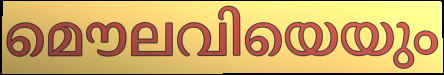
മൌലവിയെയും